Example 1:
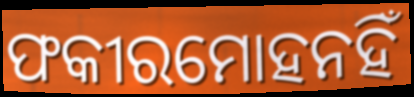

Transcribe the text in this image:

ଫକୀରମୋହନହିଁ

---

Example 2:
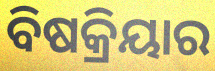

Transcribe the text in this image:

ବିଷକ୍ରିୟାର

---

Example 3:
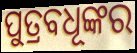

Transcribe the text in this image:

ପୁତ୍ରବଧୂଙ୍କର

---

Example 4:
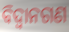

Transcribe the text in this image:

ବିଦ୍ଵାନଗଣ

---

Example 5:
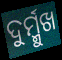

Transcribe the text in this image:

ଦୁର୍ମ୍ମୁଖ